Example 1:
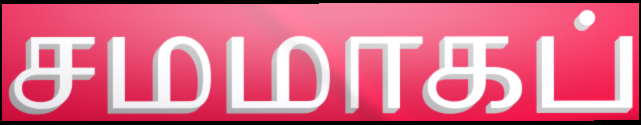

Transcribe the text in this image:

சமமாகப்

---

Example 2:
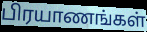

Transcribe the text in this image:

பிரயாணங்கள்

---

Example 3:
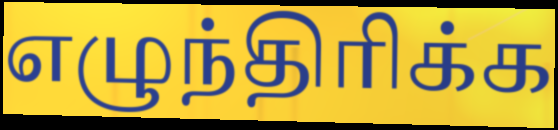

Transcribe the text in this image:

எழுந்திரிக்க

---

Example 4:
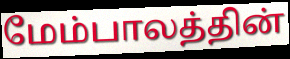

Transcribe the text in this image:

மேம்பாலத்தின்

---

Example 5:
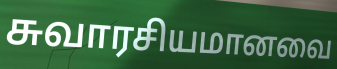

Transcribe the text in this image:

சுவாரசியமானவை